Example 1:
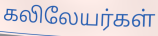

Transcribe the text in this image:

கலிலேயர்கள்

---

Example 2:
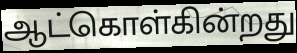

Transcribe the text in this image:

ஆட்கொள்கின்றது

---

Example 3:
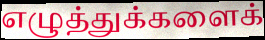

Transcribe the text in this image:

எழுத்துக்களைக்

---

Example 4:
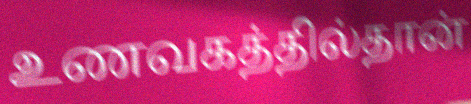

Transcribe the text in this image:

உணவகத்தில்தான்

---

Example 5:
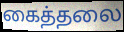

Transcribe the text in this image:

கைத்தலை